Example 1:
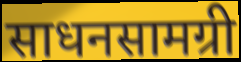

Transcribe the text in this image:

साधनसामग्री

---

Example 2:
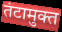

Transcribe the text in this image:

तंटामुक्त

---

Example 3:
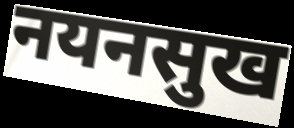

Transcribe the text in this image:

नयनसुख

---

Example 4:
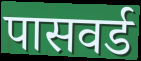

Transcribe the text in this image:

पासवर्ड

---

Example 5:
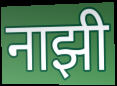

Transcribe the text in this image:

नाझी